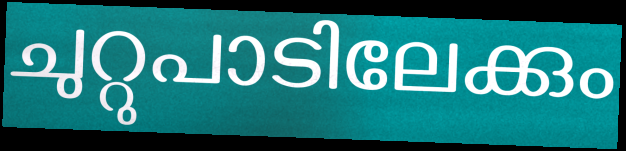
ചുറ്റുപാടിലേക്കും